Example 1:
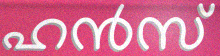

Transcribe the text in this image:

ഹൻസ്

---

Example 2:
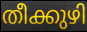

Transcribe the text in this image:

തീക്കുഴി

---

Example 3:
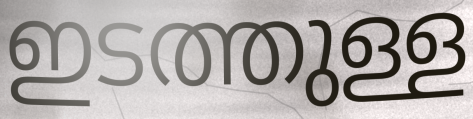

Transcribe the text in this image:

ഇടത്തുള്ള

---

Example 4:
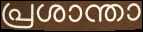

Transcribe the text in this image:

പ്രശാന്താ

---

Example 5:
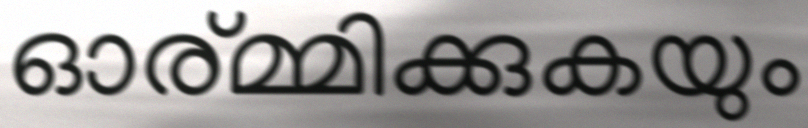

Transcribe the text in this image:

ഓര്മ്മിക്കുകയും